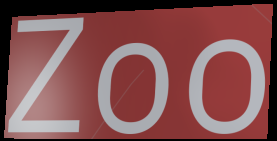
Zoo